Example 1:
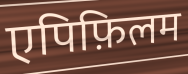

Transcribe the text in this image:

एपिफ़िलम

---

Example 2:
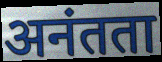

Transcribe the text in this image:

अनंतता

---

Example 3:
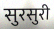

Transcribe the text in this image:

सुरसुरी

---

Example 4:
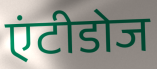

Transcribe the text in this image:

एंटीडोज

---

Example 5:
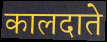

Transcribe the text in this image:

कालदाते